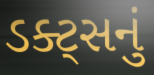
ડક્ટ્સનું